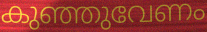
കുഞ്ഞുവേണം